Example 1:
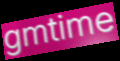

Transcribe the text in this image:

gmtime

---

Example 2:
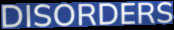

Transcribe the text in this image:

DISORDERS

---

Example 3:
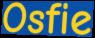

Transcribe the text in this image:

Osfie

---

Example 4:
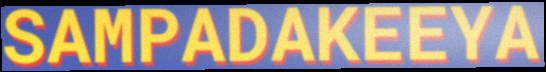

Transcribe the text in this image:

SAMPADAKEEYA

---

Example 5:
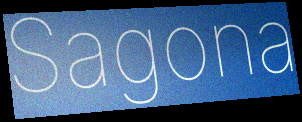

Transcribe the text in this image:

Sagona